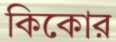
কিকোর